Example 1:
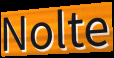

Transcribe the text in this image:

Nolte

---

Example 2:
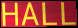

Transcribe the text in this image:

HALL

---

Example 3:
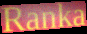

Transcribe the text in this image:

Ranka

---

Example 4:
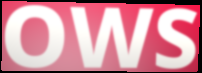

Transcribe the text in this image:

OWS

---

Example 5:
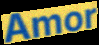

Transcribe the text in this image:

Amor